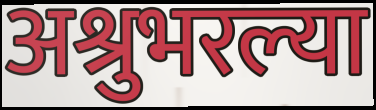
अश्रुभरल्या